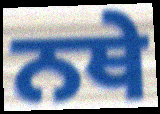
ਨਥੇ